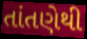
તાંતણેથી